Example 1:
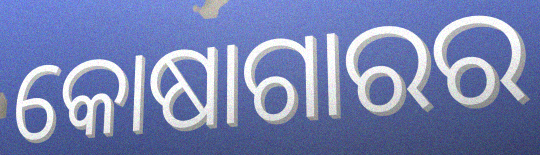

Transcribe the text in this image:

କୋଷାଗାରର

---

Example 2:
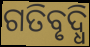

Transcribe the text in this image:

ଗତିବୃଦ୍ଧି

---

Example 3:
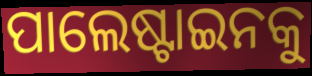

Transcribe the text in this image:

ପାଲେଷ୍ଟାଇନକୁ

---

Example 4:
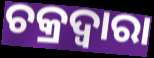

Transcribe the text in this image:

ଚକ୍ରଦ୍ୱାରା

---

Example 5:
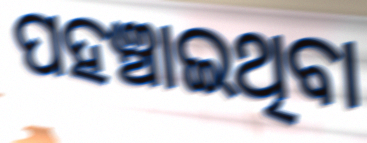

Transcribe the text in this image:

ପହଞ୍ଚାଇଥିବା